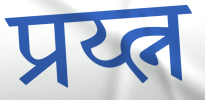
प्रय्त्न